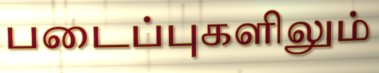
படைப்புகளிலும்